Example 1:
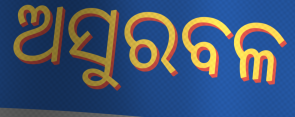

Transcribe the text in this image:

ଅସୁରବଳ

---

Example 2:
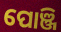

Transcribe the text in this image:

ପୋଞ୍ଜି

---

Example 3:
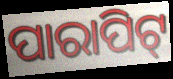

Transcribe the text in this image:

ପାରାପିଟ୍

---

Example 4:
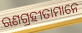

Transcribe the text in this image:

ଋଣଗ୍ରହୀତାମାନେ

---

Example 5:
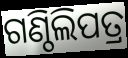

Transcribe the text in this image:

ଗଣ୍ଠିଲିପତ୍ର